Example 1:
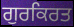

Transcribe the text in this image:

ਗੁਰਕਿਰਤ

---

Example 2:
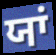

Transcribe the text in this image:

ਯਾਂ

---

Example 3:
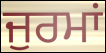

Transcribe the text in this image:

ਜੁਰਮਾਂ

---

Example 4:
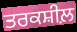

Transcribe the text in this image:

ਤਰਕਸ਼ੀਲ਼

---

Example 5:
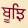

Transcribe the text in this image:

ਬੂਝਿ